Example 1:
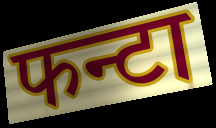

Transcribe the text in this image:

फन्टा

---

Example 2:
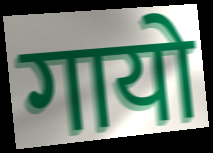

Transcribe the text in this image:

गायो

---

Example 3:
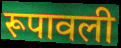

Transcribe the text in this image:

रूपावली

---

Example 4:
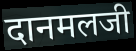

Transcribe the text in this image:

दानमलजी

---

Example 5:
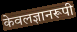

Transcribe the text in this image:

केवलज्ञानरूपी